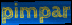
pimpar